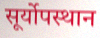
सूर्योपस्थान